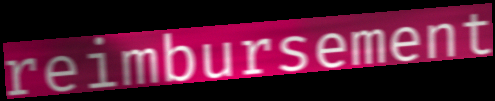
reimbursement